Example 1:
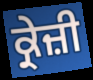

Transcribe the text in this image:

ਕ੍ਰੇਜ਼ੀ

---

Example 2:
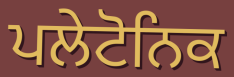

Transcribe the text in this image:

ਪਲੇਟੋਨਿਕ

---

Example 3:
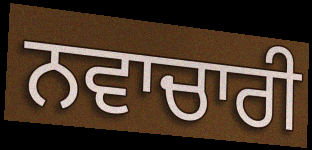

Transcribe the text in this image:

ਨਵਾਚਾਰੀ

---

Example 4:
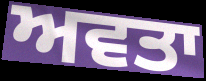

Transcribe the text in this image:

ਅਵਤਾ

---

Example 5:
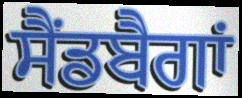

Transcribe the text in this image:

ਸੈਂਡਬੈਗਾਂ